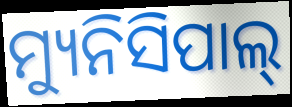
ମ୍ୟୁନିସିପାଲ୍